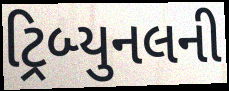
ટ્રિબ્યુનલની